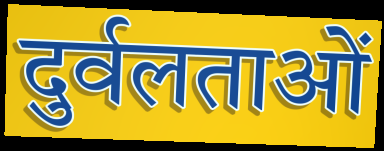
दुर्वलताओं